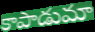
కాపాడుమా